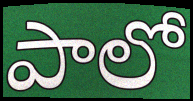
పాలో